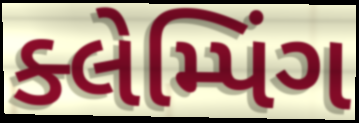
ક્લેમ્પિંગ